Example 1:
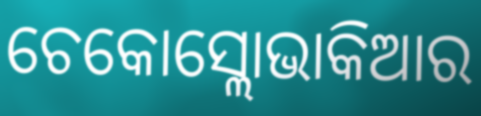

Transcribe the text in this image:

ଚେକୋସ୍ଲୋଭାକିଆର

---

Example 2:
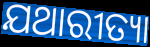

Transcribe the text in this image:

ଯଥାରୀତ୍ୟା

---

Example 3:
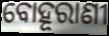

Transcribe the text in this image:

ବୋହୂରାଣୀ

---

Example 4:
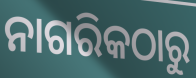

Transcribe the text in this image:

ନାଗରିକଠାରୁ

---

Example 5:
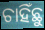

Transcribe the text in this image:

ଚାହିଁଛୁ